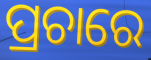
ପ୍ରଚାରେ